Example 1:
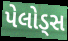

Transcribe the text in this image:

પેલોડ્સ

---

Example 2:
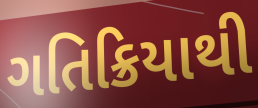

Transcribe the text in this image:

ગતિક્રિયાથી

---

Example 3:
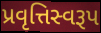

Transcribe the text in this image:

પ્રવૃત્તિસ્વરૂપ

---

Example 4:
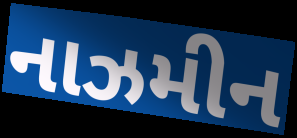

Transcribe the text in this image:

નાઝમીન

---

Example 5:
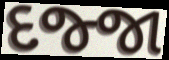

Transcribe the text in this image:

દજ્જા